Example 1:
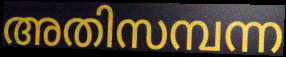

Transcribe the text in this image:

അതിസമ്പന്ന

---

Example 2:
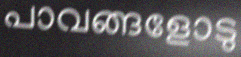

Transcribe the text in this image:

പാവങ്ങളോടു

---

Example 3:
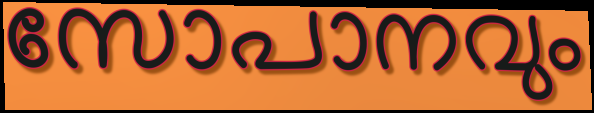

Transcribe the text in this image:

സോപാനവും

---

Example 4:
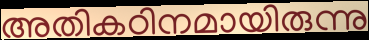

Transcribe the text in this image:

അതികഠിനമായിരുന്നു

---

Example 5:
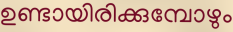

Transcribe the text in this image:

ഉണ്ടായിരിക്കുമ്പോഴും